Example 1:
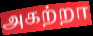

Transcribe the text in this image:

அகற்றா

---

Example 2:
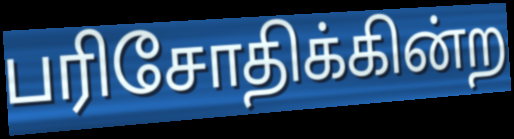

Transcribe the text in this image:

பரிசோதிக்கின்ற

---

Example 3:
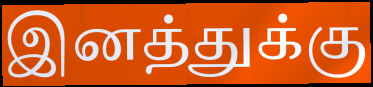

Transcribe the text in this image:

இனத்துக்கு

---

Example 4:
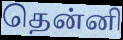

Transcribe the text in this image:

தென்னி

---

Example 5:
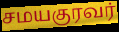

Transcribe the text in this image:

சமயகுரவர்